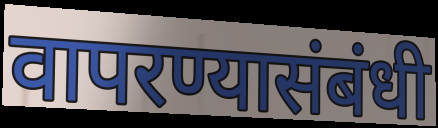
वापरण्यासंबंधी